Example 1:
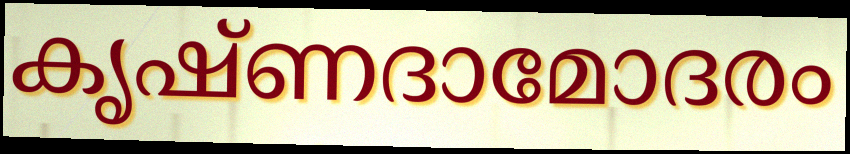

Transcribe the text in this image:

കൃഷ്ണദാമോദരം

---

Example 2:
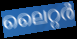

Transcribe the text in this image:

ലൈറ്റർ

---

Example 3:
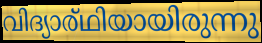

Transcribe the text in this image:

വിദ്യാര്ഥിയായിരുന്നു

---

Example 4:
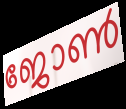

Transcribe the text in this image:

ജോൺ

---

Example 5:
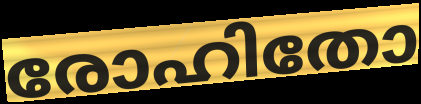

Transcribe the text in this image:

രോഹിതോ